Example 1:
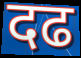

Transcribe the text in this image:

दढ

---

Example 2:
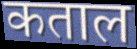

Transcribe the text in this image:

कताल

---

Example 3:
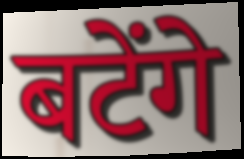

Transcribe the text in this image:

बटेंगे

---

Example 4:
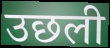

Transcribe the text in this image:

उछली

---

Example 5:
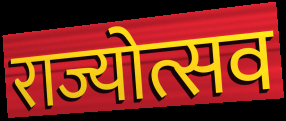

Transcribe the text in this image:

राज्योत्सव